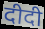
दीदी